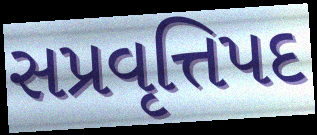
સપ્રવૃત્તિપદ